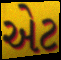
એટ